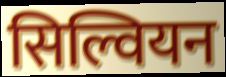
सिल्वियन